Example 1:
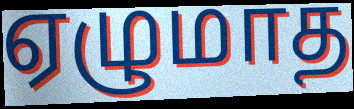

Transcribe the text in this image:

ஏழுமாத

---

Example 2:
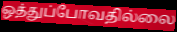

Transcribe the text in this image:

ஒத்துப்போவதில்லை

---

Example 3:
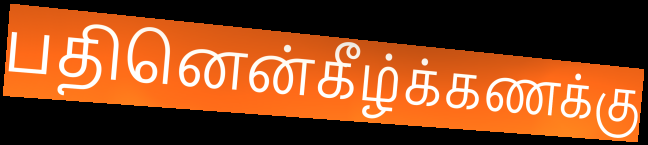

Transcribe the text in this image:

பதினென்கீழ்க்கணக்கு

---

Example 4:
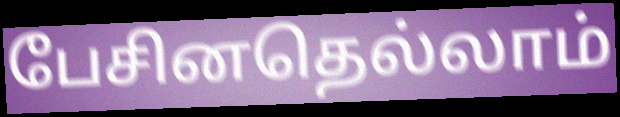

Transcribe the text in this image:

பேசினதெல்லாம்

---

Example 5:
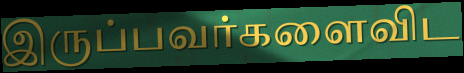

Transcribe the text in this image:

இருப்பவர்களைவிட